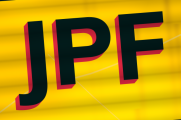
JPF